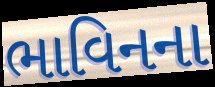
ભાવિનના